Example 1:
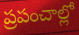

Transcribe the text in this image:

ప్రపంచాల్లో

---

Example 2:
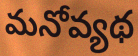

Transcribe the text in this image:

మనోవ్యథ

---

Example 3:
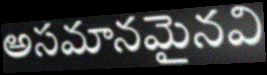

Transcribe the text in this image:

అసమానమైనవి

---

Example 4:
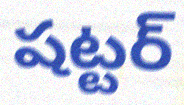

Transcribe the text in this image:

షట్టర్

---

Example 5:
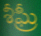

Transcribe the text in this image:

శీఘ్రీ